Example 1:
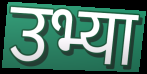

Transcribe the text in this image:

उभ्या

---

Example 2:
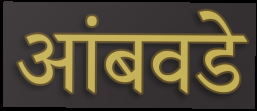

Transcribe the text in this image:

आंबवडे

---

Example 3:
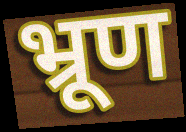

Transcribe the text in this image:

भ्रूण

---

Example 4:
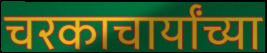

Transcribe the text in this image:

चरकाचार्यांच्या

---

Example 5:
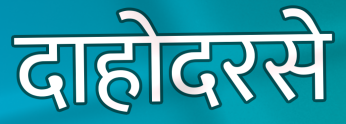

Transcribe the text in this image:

दाहोदरसे